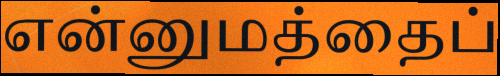
என்னுமத்தைப்